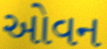
ઓવન